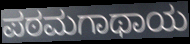
ಪಠಮಗಾಥಾಯ